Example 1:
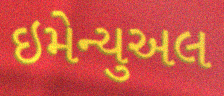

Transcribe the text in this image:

ઇમેન્યુઅલ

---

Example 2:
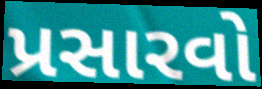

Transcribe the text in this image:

પ્રસારવો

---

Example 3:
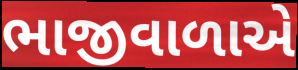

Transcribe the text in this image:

ભાજીવાળાએ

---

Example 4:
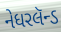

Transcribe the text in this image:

નેધરલૅન્ડ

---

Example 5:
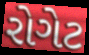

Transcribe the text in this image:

રોગેટ